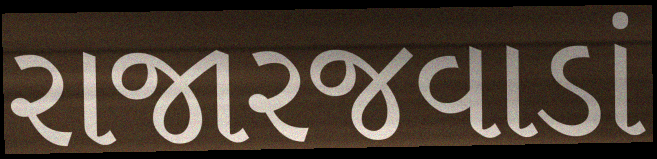
રાજારજવાડાં